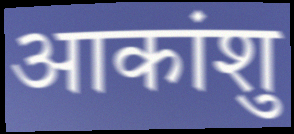
आकांशु